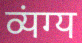
व्यंग्य